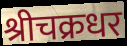
श्रीचक्रधर